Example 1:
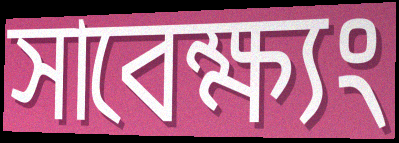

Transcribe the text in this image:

সাবেক্ষ্যং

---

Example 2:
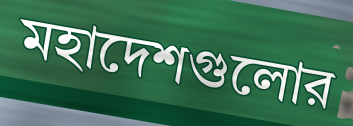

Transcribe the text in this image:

মহাদেশগুলোর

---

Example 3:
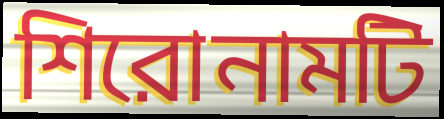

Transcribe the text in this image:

শিরোনামটি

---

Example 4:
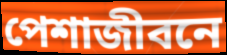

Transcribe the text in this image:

পেশাজীবনে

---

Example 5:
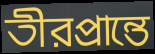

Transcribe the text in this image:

তীরপ্রান্তে